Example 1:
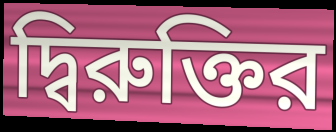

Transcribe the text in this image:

দ্বিরুক্তির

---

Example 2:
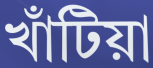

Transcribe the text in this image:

খাঁটিয়া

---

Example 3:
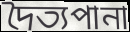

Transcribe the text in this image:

দৈত্যপানা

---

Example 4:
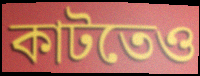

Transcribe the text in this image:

কাটতেও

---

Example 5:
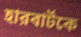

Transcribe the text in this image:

হারবার্টকে